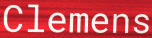
Clemens